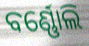
ବର୍ଣ୍ଣୋଲି